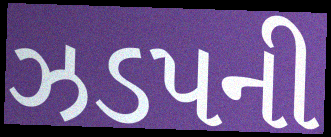
ઝડપની